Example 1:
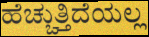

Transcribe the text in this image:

ಹೆಚ್ಚುತ್ತಿದೆಯಲ್ಲ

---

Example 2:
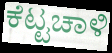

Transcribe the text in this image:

ಕೆಟ್ಟಚಾಳಿ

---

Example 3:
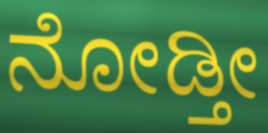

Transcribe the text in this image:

ನೋಡ್ತೀ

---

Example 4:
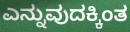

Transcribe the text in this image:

ಎನ್ನುವುದಕ್ಕಿಂತ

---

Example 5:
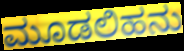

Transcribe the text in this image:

ಮೂಡಲಿಹನು